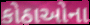
કોઠાઓના